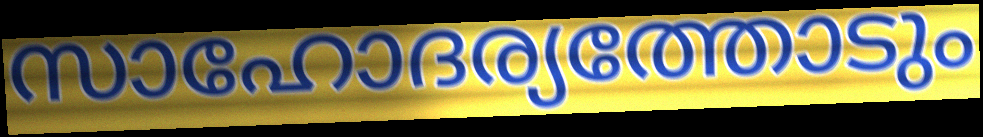
സാഹോദര്യത്തോടും